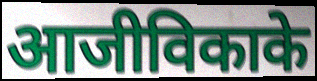
आजीविकाके